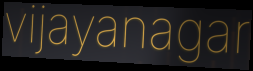
vijayanagar